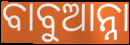
ବାବୁଆନ୍ନା